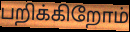
பறிக்கிறோம்